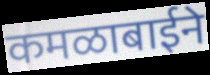
कमळाबाईने